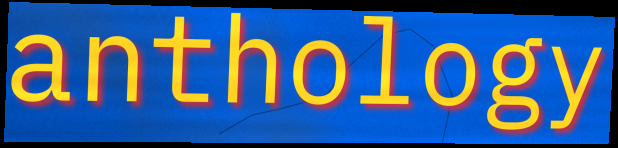
anthology